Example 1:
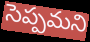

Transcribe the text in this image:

సెప్పమని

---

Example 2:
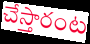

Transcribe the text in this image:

చేస్తారంట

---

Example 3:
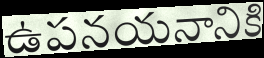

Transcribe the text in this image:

ఉపనయనానికి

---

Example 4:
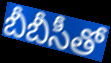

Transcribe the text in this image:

బీబీసీతో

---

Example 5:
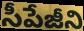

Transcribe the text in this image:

సీపేజీని